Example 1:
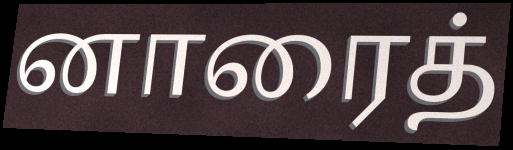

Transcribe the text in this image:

னாரைத்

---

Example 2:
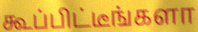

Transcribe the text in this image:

கூப்பிட்டீங்களா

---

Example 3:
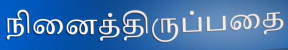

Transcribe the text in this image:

நினைத்திருப்பதை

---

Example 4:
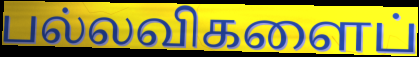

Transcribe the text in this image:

பல்லவிகளைப்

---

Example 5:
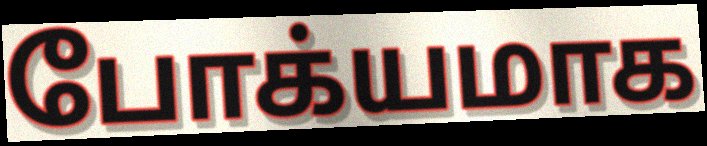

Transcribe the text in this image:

போக்யமாக